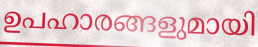
ഉപഹാരങ്ങളുമായി